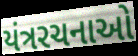
યંત્રરચનાઓ